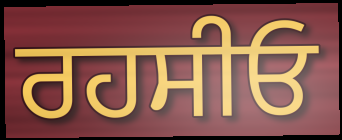
ਰਹਸੀਓ